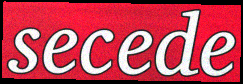
secede